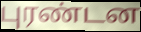
புரண்டன